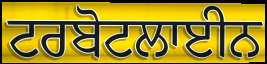
ਟਰਬੋਟਲਾਈਨ